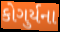
કોગુર્યના